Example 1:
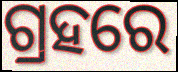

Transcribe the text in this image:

ଗ୍ରହରେ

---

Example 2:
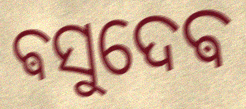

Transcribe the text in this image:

ଵସୁଦେଵ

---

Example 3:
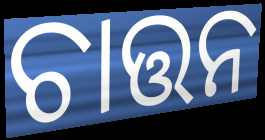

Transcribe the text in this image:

ଚାତ୍ତନ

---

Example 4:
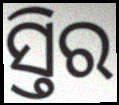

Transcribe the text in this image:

ସ୍ତିର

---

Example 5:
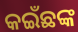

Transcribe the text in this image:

କଇଁଛଙ୍କ